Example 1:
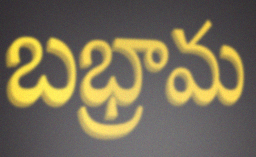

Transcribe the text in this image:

బభ్రామ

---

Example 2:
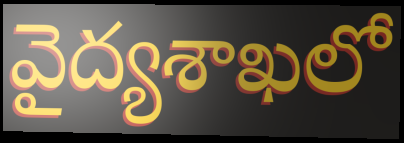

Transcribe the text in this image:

వైద్యశాఖలో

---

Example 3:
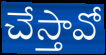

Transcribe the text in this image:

చేస్తావో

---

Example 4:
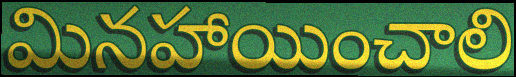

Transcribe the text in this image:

మినహాయించాలి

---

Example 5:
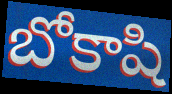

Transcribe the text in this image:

బోకాషి